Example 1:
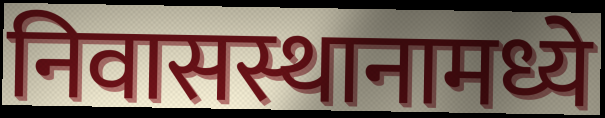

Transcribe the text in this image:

निवासस्थानामध्ये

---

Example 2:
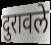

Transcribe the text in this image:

दुरावले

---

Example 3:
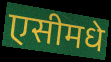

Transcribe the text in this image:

एसीमधे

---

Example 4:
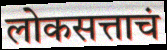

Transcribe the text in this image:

लोकसत्ताचं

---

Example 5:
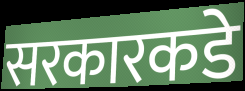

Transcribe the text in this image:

सरकारकडे